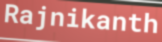
Rajnikanth